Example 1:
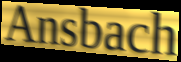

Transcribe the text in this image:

Ansbach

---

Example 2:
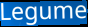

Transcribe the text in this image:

Legume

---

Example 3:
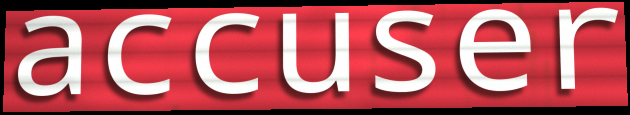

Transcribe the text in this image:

accuser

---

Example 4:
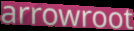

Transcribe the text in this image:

arrowroot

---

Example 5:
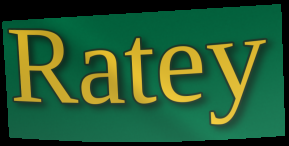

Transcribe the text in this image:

Ratey